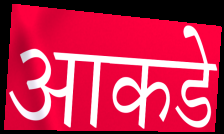
आकडे